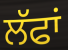
ਲੱਫਾਂ